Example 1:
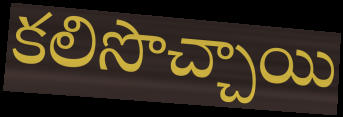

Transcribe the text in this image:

కలిసొచ్చాయి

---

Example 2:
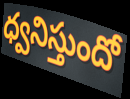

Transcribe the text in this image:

ధ్వనిస్తుందో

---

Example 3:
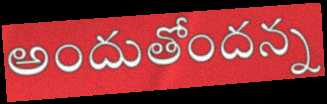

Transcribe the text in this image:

అందుతోందన్న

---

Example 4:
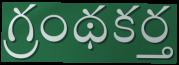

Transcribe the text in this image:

గ్రంథకర్త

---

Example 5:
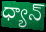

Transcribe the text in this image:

ధ్యాన్